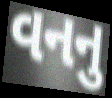
વનનુ